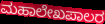
ಮಹಾಲೇಖಪಾಲರ